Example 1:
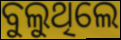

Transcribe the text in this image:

ବୁଲୁଥିଲେ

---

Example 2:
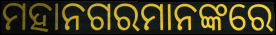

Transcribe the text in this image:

ମହାନଗରମାନଙ୍କରେ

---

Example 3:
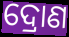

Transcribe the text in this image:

ଦ୍ରୋଣ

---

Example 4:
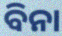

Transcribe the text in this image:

ବିନା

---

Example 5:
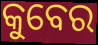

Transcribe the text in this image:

କୁବେର